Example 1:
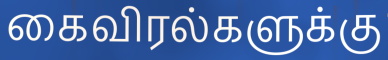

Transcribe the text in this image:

கைவிரல்களுக்கு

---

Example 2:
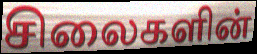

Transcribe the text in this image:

சிலைகளின்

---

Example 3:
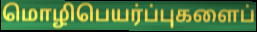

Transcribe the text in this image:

மொழிபெயர்ப்புகளைப்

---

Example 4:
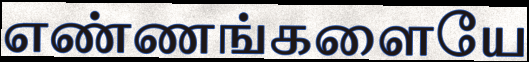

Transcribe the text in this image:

எண்ணங்களையே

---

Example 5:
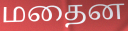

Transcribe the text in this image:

மதைன